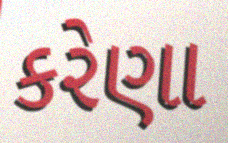
કરેણા